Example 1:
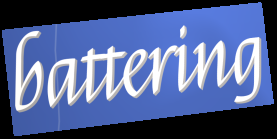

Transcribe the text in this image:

battering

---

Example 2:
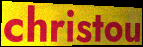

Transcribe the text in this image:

christou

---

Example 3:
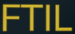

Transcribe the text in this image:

FTIL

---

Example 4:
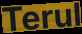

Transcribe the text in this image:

Terul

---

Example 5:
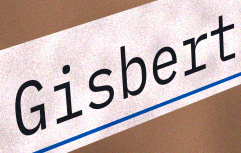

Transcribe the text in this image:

Gisbert